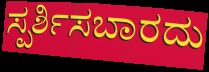
ಸ್ಪರ್ಶಿಸಬಾರದು